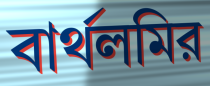
বার্থলমির